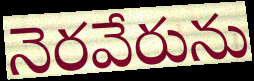
నెరవేరును